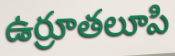
ఉర్రూతలూపి